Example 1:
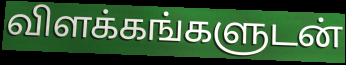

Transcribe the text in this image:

விளக்கங்களுடன்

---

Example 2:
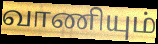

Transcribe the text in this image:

வாணியும்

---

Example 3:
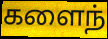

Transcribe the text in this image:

களைந்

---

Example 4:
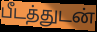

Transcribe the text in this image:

பீடத்துடன்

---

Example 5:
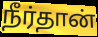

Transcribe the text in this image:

நீர்தான்